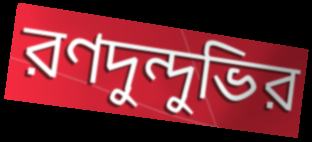
রণদুন্দুভির